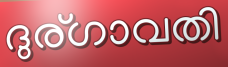
ദുര്ഗാവതി